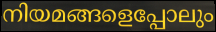
നിയമങ്ങളെപ്പോലും